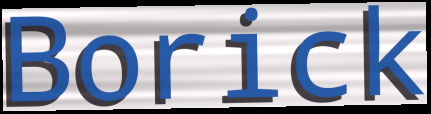
Borick